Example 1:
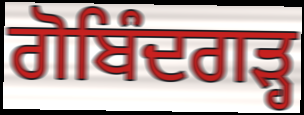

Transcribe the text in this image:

ਗੋਬਿੰਦਗੜ੍ਹ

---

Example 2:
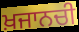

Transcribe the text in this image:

ਖ਼ਜਾਨਚੀ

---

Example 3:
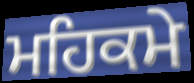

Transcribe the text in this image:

ਮਹਿਕਮੇ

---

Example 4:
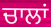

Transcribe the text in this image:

ਚਾਲਾਂ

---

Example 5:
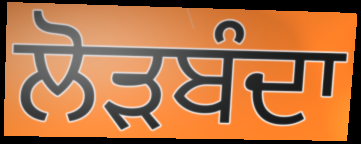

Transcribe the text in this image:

ਲੋੜਬੰਦਾ